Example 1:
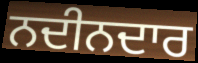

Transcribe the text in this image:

ਨਦੀਨਦਾਰ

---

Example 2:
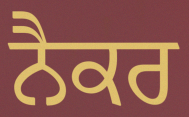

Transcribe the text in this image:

ਨੈਕਰ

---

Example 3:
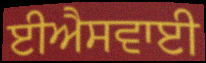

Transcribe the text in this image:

ਈਐਸਵਾਈ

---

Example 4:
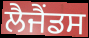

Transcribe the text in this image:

ਲੈਜੈਂਡਸ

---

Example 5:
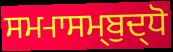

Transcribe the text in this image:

ਸਮ੍ਮਾਸਮ੍ਬੁਦ੍ਧੋ